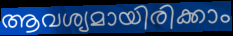
ആവശ്യമായിരിക്കാം